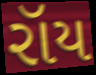
રૉય